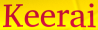
Keerai